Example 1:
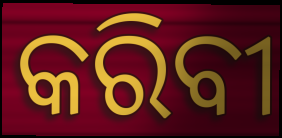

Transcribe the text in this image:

କରିବୀ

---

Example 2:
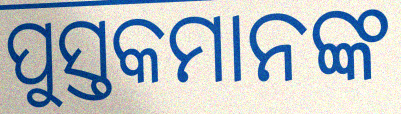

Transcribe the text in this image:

ପୁସ୍ତକମାନଙ୍କ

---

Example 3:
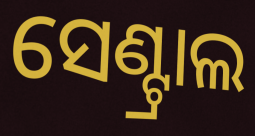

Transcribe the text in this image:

ସେଣ୍ଟ୍ରାଲ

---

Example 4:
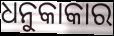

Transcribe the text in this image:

ଧନୁକାକାର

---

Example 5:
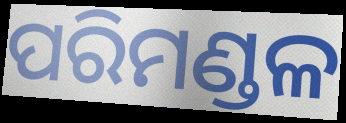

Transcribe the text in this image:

ପରିମଣ୍ଡଳ